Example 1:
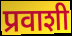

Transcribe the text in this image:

प्रवाशी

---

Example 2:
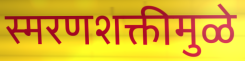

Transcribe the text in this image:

स्मरणशक्तीमुळे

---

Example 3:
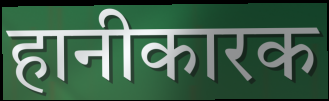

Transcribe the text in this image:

हानीकारक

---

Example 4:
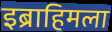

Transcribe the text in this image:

इब्राहिमला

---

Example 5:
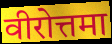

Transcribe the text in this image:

वीरोत्तमा